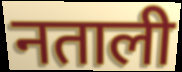
नताली